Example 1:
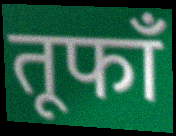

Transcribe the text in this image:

तूफाँ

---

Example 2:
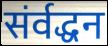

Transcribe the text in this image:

संर्वद्धन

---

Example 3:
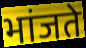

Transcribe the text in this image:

भांजते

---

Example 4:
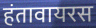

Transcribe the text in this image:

हंतावायरस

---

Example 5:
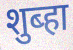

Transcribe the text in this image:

शुब्हा